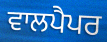
ਵਾਲਪੈਪਰ